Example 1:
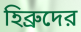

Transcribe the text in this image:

হিব্রুদের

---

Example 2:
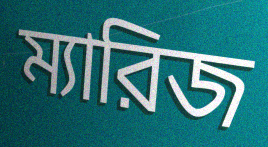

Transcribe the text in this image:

ম্যারিজ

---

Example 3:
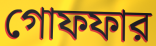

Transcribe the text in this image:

গোফফার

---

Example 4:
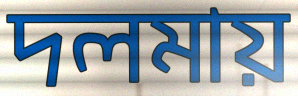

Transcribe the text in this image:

দলমায়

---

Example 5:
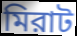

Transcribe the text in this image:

মিরাট